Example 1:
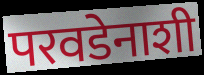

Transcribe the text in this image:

परवडेनाशी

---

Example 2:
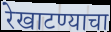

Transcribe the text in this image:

रेखाटण्याचा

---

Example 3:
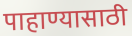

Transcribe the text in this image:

पाहाण्यासाठी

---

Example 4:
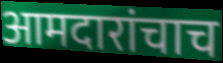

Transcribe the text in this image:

आमदारांचाच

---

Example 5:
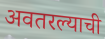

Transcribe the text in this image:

अवतरल्याची